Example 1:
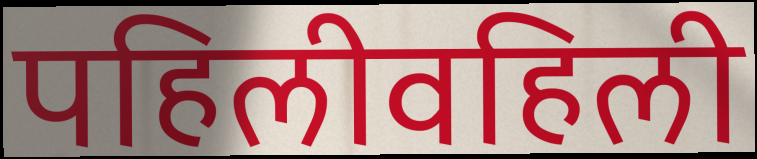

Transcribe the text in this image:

पहिलीवहिली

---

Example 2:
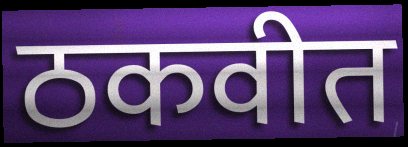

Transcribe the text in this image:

ठकवीत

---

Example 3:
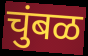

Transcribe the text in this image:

चुंबळ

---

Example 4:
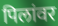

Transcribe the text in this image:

पिलांवर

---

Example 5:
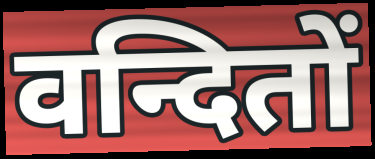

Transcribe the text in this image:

वन्दितों